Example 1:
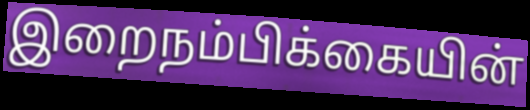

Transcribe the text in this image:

இறைநம்பிக்கையின்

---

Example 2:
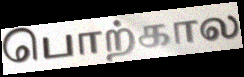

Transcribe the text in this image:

பொற்கால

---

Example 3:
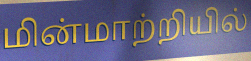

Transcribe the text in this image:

மின்மாற்றியில்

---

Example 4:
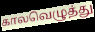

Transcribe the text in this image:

காலவெழுத்து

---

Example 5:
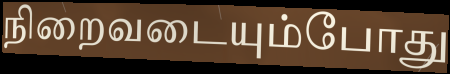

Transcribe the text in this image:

நிறைவடையும்போது